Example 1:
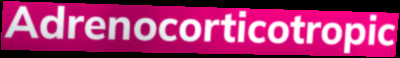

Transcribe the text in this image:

Adrenocorticotropic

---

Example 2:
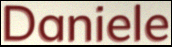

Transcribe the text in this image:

Daniele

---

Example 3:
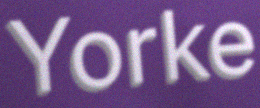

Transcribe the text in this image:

Yorke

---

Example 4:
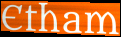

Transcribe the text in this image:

Etham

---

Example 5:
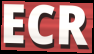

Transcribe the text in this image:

ECR